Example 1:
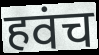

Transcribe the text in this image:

हवंच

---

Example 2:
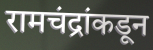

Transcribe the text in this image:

रामचंद्रांकडून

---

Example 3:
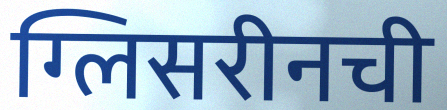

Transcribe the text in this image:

ग्लिसरीनची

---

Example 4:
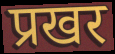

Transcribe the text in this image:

प्रखर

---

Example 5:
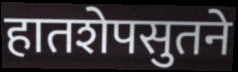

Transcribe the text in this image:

हातशेपसुतने